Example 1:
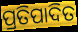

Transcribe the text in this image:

ପ୍ରତିପାଦିତ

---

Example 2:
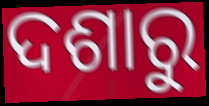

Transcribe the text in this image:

ଦଶାରୁ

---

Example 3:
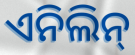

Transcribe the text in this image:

ଏନିଲିନ୍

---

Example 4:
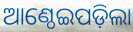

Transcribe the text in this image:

ଆଣ୍ଠେଇପଡ଼ିଲା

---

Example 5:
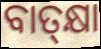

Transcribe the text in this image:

ବାତ୍କ୍ଷା